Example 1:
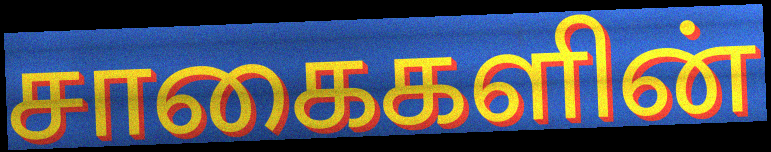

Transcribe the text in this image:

சாகைகளின்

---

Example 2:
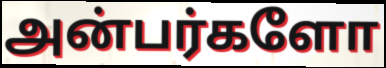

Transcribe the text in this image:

அன்பர்களோ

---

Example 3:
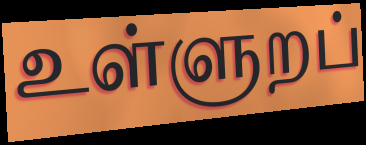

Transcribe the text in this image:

உள்ளுறப்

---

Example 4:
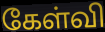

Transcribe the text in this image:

கேள்வி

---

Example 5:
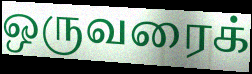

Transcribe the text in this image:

ஒருவரைக்